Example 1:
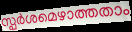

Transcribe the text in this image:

സ്പർശമെഴാത്തതാം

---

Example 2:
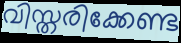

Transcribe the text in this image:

വിസ്തരിക്കേണ്ട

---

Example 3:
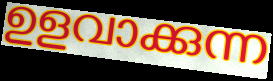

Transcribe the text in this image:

ഉളവാക്കുന്ന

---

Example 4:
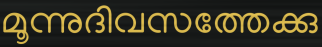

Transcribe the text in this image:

മൂന്നുദിവസത്തേക്കു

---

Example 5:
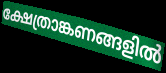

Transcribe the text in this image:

ക്ഷേത്രാങ്കണങ്ങളിൽ